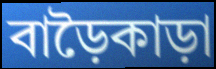
বাড়ৈকাড়া